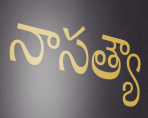
నాసత్యౌ